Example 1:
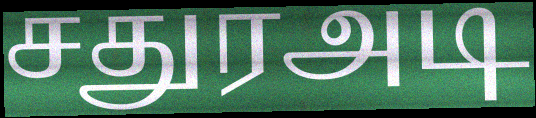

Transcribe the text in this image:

சதுரஅடி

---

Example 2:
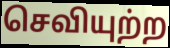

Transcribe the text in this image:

செவியுற்ற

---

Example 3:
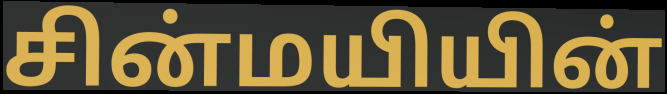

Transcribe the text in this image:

சின்மயியின்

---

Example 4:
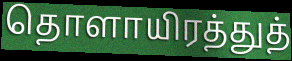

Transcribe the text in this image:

தொளாயிரத்துத்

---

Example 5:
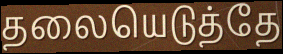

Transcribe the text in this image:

தலையெடுத்தே